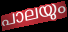
പാലയും